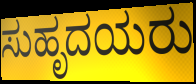
ಸುಹೃದಯರು